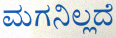
ಮಗನಿಲ್ಲದೆ